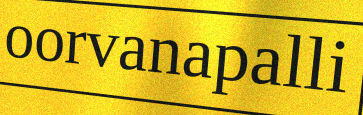
oorvanapalli